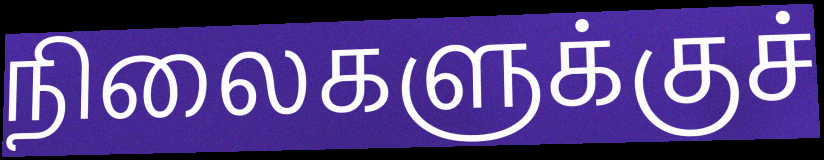
நிலைகளுக்குச்